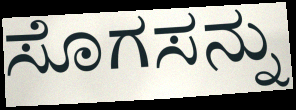
ಸೊಗಸನ್ನು